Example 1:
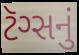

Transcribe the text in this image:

ટૅગ્સનું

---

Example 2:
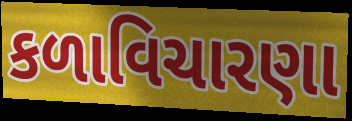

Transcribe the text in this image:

કળાવિચારણા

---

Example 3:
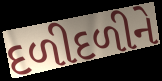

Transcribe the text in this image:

દળીદળીને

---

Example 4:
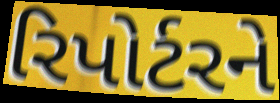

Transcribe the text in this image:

રિપોર્ટરને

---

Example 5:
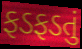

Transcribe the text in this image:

ફડફડતું